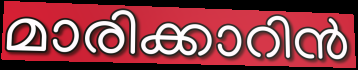
മാരിക്കാറിൻ